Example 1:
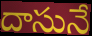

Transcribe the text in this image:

దాసునే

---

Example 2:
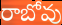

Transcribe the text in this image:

రాబోవు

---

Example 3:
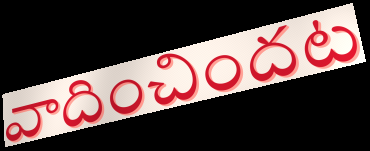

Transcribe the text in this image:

వాదించిందట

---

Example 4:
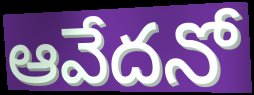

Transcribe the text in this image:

ఆవేదనో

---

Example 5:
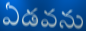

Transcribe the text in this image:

ఏడవను